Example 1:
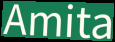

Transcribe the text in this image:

Amita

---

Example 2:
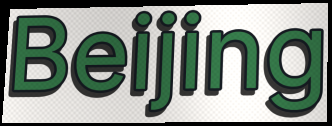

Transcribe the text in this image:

Beijing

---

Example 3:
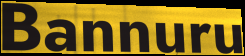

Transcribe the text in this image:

Bannuru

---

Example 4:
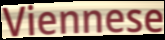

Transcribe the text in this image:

Viennese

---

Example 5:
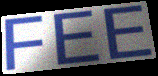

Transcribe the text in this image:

FEE